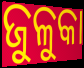
ଜୁଳୁକା